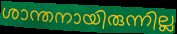
ശാന്തനായിരുന്നില്ല